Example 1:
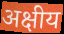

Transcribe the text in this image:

अक्षीय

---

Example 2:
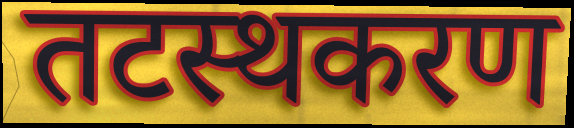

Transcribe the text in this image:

तटस्थकरण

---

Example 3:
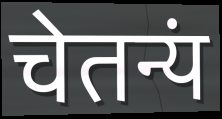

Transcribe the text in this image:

चेतन्यं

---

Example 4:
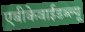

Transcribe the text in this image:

एबीकेवाईडब्ल्यू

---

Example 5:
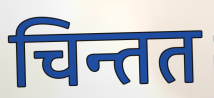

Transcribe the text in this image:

चिन्तत